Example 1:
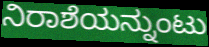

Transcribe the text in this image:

ನಿರಾಶೆಯನ್ನುಂಟು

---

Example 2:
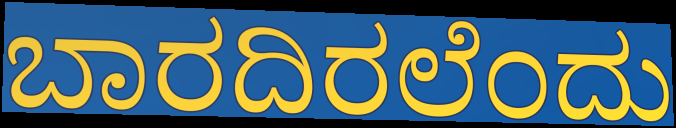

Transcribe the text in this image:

ಬಾರದಿರಲೆಂದು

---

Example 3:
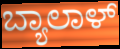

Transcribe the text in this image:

ಬ್ಯಾಲಾಳ್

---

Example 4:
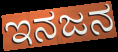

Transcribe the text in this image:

ಇನಜನ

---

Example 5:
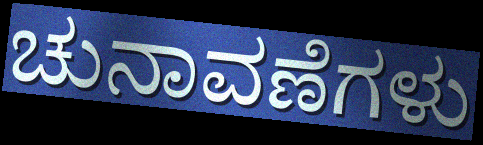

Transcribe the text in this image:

ಚುನಾವಣೆಗಳು